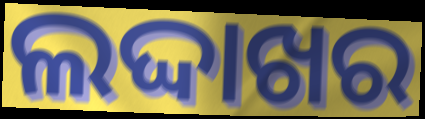
ଲଦ୍ଦାଖର